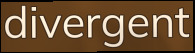
divergent